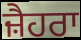
ਜ਼ੈਹਰਾ